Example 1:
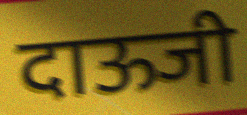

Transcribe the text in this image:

दाऊजी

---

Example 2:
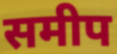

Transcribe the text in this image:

समीप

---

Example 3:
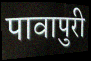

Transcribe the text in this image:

पावापुरी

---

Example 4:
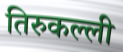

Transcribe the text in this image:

तिरुकल्ली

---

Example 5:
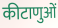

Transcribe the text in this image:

कीटाणुओं